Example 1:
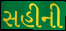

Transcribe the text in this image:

સહીની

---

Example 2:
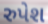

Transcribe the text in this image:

રુપેશ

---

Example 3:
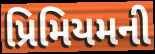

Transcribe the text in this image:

પ્રિમિયમની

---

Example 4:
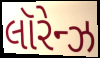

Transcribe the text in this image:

લૉરેન્ઝ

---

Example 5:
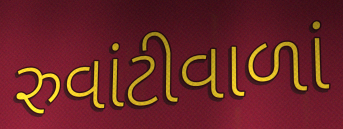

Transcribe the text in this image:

રુવાંટીવાળાં